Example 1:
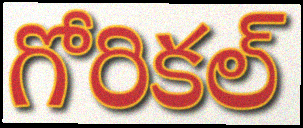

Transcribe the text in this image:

గోరికల్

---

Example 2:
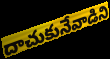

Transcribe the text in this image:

దాచుకునేవాడిని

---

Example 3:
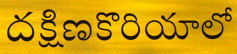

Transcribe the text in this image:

దక్షిణకొరియాలో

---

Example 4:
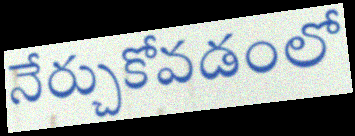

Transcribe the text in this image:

నేర్చుకోవడంలో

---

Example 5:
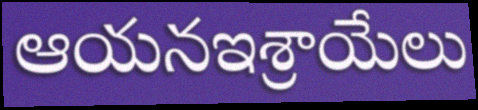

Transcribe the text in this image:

ఆయనఇశ్రాయేలు